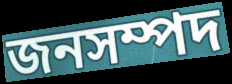
জনসম্পদ